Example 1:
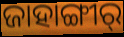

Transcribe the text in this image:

ଜାହାଙ୍ଗୀର୍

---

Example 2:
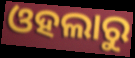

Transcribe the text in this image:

ଓହଲାରୁ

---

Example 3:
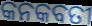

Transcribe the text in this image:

କନକବତୀ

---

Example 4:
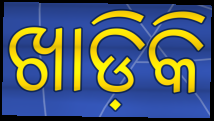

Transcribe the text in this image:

ଖାଡ଼ିକି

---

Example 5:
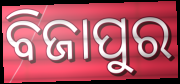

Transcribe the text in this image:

ବିଜାପୁର